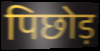
पिछोड़